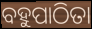
ବହୁପାଠିତା